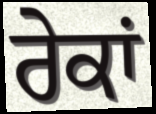
ਰੇਕਾਂ